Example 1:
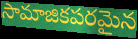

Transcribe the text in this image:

సామాజికపరమైన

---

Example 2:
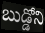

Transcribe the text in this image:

బుడ్డోని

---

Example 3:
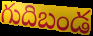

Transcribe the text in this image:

గుదిబండ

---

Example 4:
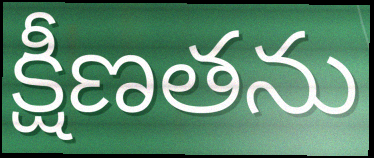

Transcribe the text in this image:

క్షీణతను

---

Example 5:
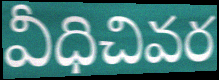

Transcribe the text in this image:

వీధిచివర